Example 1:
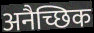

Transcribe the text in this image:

अनैच्छिक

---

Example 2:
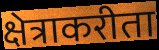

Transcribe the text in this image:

क्षेत्राकरीता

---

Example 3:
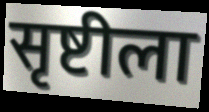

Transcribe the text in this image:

सृष्टीला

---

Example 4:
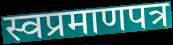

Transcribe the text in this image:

स्वप्रमाणपत्र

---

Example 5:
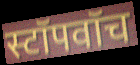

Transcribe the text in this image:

स्टॉपवॉच